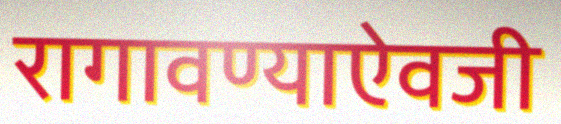
रागावण्याऐवजी